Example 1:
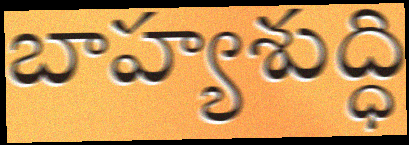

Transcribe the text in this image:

బాహ్యశుద్ధి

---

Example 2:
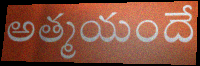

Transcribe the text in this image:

అత్మయందే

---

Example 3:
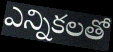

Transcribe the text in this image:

ఎన్నికలతో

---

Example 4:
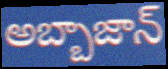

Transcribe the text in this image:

అబ్బాజాన్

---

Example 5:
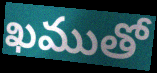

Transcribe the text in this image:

ఖముతో